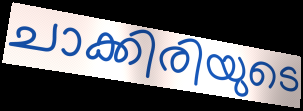
ചാക്കിരിയുടെ